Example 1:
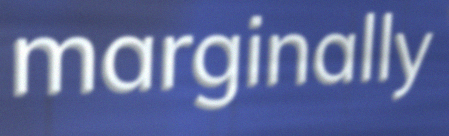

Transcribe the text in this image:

marginally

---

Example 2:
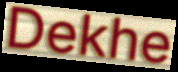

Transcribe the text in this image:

Dekhe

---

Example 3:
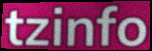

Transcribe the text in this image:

tzinfo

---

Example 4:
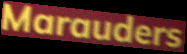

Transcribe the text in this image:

Marauders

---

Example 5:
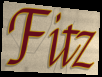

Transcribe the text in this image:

Fitz